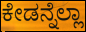
ಕೇಡನ್ನೆಲ್ಲಾ